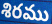
శిరము